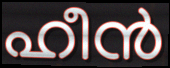
ഹീൻ